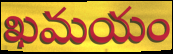
ఖమయం